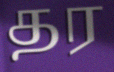
தர